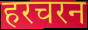
हरचरन